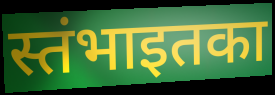
स्तंभाइतका